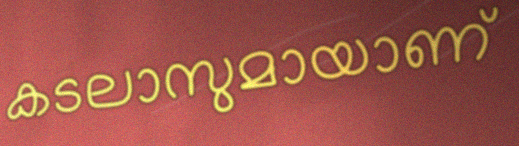
കടലാസുമായാണ്